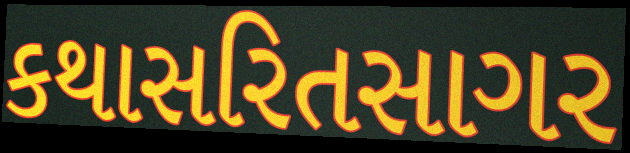
કથાસરિતસાગર